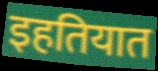
इहतियात